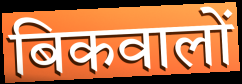
बिकवालों